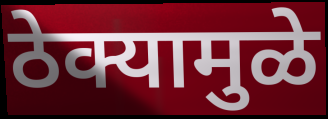
ठेक्यामुळे